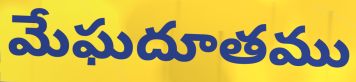
మేఘదూతము